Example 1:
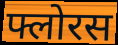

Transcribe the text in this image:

फ्लोरस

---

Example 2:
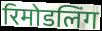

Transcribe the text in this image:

रिमोडलिंग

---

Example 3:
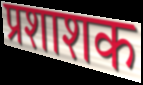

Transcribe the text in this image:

प्रशाशक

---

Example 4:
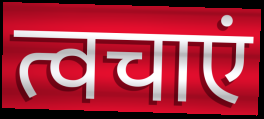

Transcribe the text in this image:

त्वचाएं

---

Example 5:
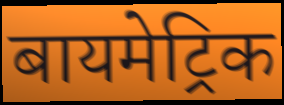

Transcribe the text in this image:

बायमेट्रिक